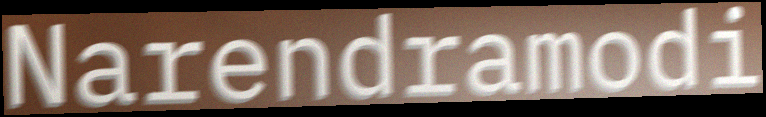
Narendramodi